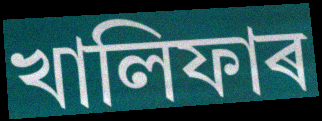
খালিফাৰ